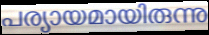
പര്യായമായിരുന്നു